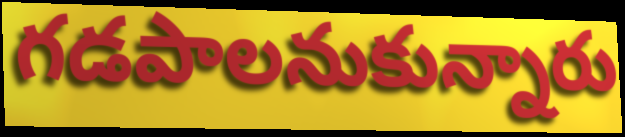
గడపాలనుకున్నారు